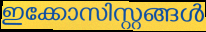
ഇക്കോസിസ്റ്റങ്ങൾ